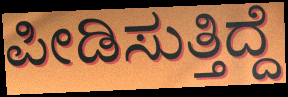
ಪೀಡಿಸುತ್ತಿದ್ದೆ